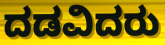
ದಡವಿದರು